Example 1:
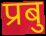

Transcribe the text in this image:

प्रबु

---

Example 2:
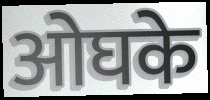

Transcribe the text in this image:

ओघके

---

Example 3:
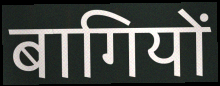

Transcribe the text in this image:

बागियों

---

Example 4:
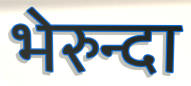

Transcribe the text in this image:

भेरुन्दा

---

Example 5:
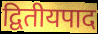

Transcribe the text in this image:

द्वितीयपाद